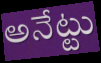
అనేట్టు